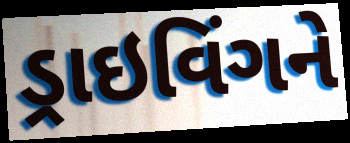
ડ્રાઇવિંગને